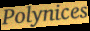
Polynices